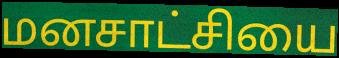
மனசாட்சியை